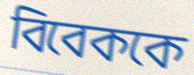
বিবেককে